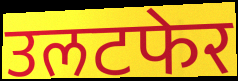
उलटफेर